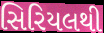
સિરિયલથી